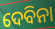
ଦେବିନା